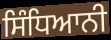
ਸਿੰਧਿਆਨੀ